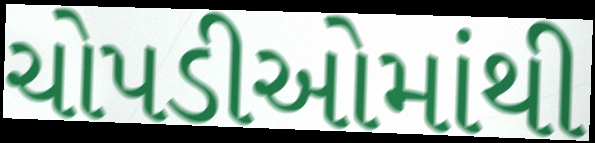
ચોપડીઓમાંથી